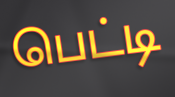
பெட்டி